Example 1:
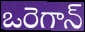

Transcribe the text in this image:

ఒరెగాన్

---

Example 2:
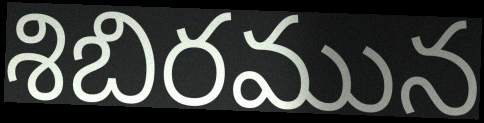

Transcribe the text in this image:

శిబిరమున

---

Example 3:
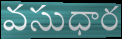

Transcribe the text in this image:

వసుధార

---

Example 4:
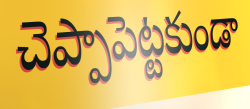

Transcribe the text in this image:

చెప్పాపెట్టకుండా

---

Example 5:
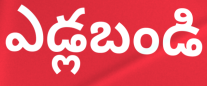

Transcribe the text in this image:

ఎడ్లబండి